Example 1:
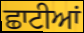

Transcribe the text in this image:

ਛਾਟੀਆਂ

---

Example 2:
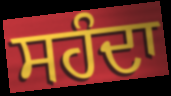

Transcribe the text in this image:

ਸਹੰਦਾ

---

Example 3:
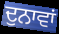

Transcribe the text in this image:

ਦੁਨਾਵਾਂ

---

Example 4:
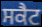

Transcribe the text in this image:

ਸਕੈਟ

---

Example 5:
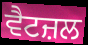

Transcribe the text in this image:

ਵੈਟਜ਼ਲ